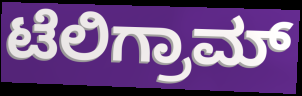
ಟೆಲಿಗ್ರಾಮ್